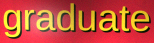
graduate